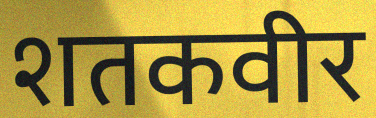
शतकवीर